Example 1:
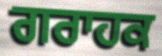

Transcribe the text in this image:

ਗਰਾਹਕ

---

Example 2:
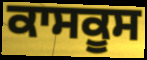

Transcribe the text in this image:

ਕਾਸਕੂਸ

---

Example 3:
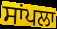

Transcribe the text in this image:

ਸਾਂਪਲਾ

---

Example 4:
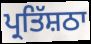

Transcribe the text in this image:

ਪ੍ਰਤਿੱਸ਼ਠਾ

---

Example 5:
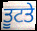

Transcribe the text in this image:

ਤੂਟਤੇ